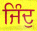
ਜਿੰਦੁ